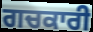
ਗਚਕਾਰੀ